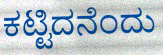
ಕಟ್ಟಿದನೆಂದು